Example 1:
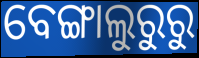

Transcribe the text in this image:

ବେଙ୍ଗାଲୁରୁରୁ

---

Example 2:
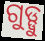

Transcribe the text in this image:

ଗୁଡ୍ଡୁ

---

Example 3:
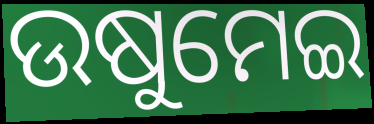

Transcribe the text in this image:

ଉଷୁମେଇ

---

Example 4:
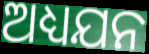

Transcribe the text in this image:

ଅଧ୍ୟଯନ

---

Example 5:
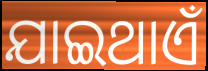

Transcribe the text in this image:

ଯାଇଥାଏଁ